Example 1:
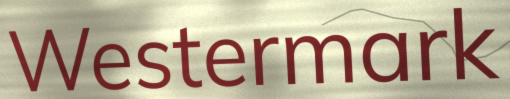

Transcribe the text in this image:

Westermark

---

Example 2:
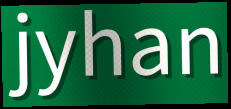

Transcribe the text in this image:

jyhan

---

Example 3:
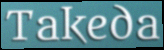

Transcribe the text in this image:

Takeda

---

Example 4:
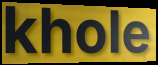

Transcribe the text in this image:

khole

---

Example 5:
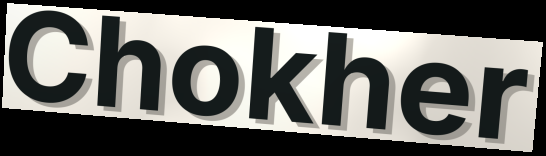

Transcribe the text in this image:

Chokher